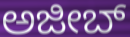
ಅಜೀಬ್